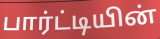
பார்ட்டியின்